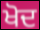
ਖੋਦ